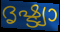
ദൃഷ്ട്യാ